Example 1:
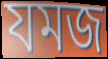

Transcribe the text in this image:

যমজ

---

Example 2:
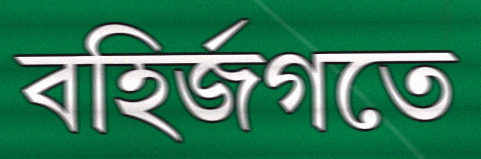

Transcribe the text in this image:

বহির্জগতে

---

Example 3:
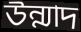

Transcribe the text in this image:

উন্মাদ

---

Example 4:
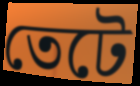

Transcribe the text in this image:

তেটে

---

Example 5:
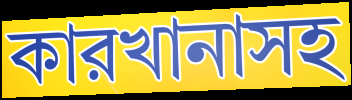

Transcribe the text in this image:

কারখানাসহ